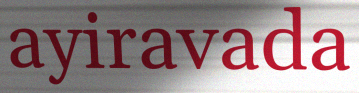
ayiravada